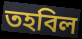
তহবিল